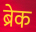
ब्रेक